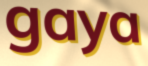
gaya